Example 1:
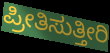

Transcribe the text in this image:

ಪ್ರೀತಿಸುತ್ತೀರಿ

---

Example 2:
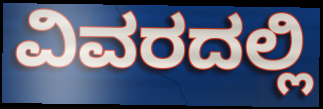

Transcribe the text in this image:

ವಿವರದಲ್ಲಿ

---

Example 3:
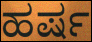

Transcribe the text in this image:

ಹರ್ಷ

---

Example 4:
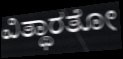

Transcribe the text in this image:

ವಿತ್ಥಾರತೋ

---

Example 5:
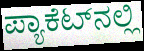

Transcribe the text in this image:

ಪ್ಯಾಕೆಟ್‌ನಲ್ಲಿ